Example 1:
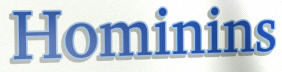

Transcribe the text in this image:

Hominins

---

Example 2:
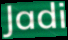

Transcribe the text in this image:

Jadi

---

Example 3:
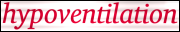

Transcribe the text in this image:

hypoventilation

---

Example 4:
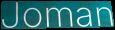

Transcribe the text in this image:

Joman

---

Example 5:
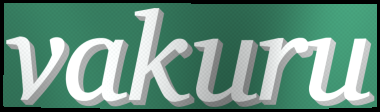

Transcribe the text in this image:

vakuru